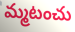
మ్మటంచు